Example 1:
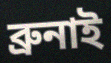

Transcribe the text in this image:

ব্ৰুনাই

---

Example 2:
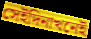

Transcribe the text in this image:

সেইদিনাখনেই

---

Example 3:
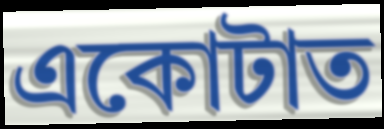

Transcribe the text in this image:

একোটাত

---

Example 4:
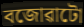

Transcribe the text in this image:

বজোৱাটো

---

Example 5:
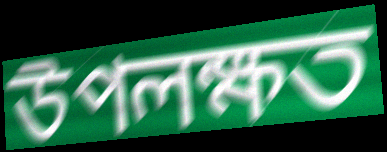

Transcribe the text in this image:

উপলক্ষত